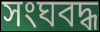
সংঘবদ্ধ